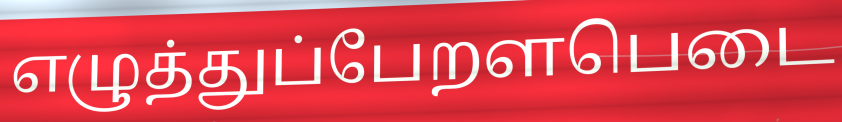
எழுத்துப்பேறளபெடை